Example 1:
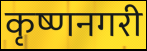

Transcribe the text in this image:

कृष्णनगरी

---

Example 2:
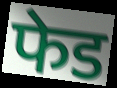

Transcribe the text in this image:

फेड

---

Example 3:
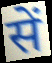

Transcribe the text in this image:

सें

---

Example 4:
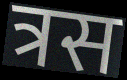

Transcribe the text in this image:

त्रस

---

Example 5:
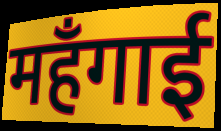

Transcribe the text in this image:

महँगाई